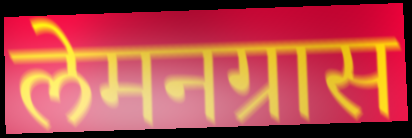
लेमनग्रास